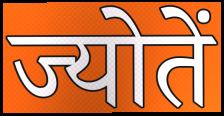
ज्योतें